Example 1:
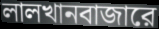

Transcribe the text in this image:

লালখানবাজারে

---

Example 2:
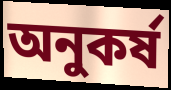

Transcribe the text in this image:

অনুকর্ষ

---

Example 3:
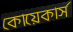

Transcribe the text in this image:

কোয়েকার্স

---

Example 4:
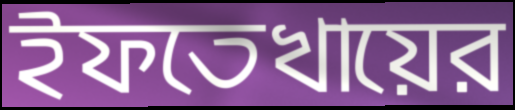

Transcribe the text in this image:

ইফতেখায়ের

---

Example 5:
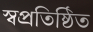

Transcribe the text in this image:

স্বপ্রতিষ্ঠিত